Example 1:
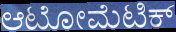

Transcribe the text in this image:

ಆಟೋಮೆಟಿಕ್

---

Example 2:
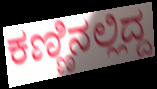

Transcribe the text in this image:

ಕಣ್ಣಿನಲ್ಲಿದ್ದ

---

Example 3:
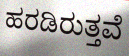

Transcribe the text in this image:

ಹರಡಿರುತ್ತವೆ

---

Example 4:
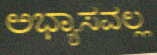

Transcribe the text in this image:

ಅಭ್ಯಾಸವಲ್ಲ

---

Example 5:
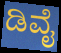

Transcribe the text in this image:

ಡಿವೈ